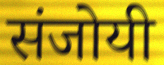
संजोयी